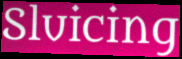
Sluicing